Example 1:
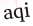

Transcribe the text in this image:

aqi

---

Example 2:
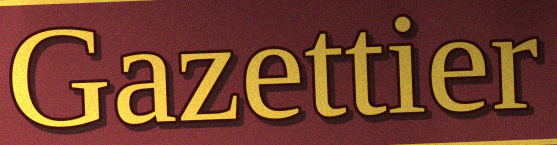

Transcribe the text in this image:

Gazettier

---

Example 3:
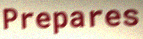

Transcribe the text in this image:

Prepares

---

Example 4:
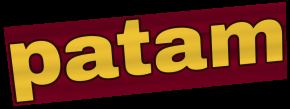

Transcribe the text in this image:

patam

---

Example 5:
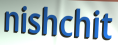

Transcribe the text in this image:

nishchit